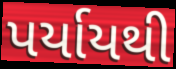
પર્યાયથી